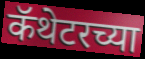
कॅथेटरच्या